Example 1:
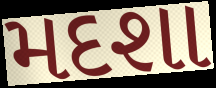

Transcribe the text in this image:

મદશા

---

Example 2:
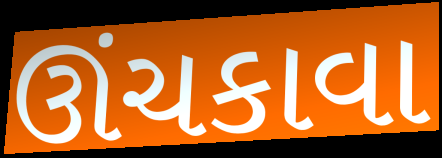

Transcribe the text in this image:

ઊંચકાવા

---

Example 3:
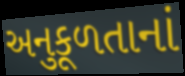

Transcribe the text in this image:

અનુકૂળતાનાં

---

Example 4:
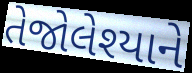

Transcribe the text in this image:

તેજોલેશ્યાને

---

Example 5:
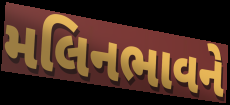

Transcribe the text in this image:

મલિનભાવને